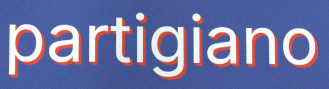
partigiano